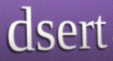
dsert